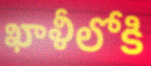
ఖాళీలోకి